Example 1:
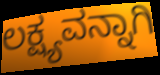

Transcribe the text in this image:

ಲಕ್ಷ್ಯವನ್ನಾಗಿ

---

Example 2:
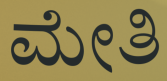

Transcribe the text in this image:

ಮೇತಿ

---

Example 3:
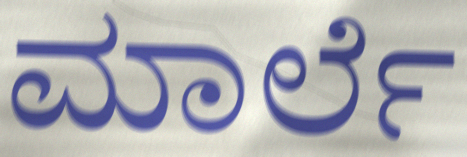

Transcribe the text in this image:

ಮಾರ್ಲೆ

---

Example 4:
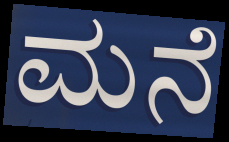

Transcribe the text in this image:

ಮನೆ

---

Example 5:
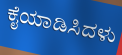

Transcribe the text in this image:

ಕೈಯಾಡಿಸಿದಳು